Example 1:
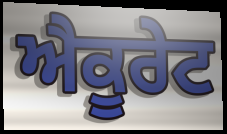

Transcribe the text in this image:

ਐਕੂਰੇਟ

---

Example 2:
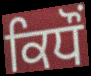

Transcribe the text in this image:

ਕਿਧੌਂ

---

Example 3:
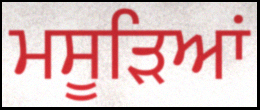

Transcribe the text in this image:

ਮਸੂੜਿਆਂ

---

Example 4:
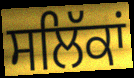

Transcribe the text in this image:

ਸਲਿੱਕਾਂ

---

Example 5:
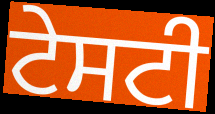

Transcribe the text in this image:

ਟੇਸਟੀ